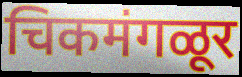
चिकमंगळूर